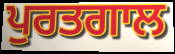
ਪੁਰਤਗਾਲ